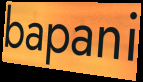
bapani